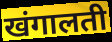
खंगालती